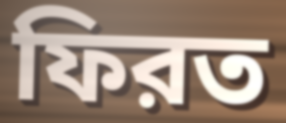
ফিরত